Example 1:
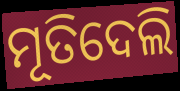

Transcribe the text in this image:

ମୂତିଦେଲି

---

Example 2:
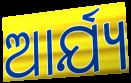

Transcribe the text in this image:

ଆର୍ଯ୍ୟ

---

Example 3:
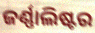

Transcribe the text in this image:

ଜର୍ଣ୍ଣାଲିଷ୍ଟର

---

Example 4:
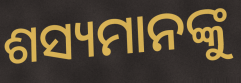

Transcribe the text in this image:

ଶସ୍ୟମାନଙ୍କୁ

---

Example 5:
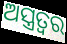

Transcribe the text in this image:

ଅସ୍ତ୍ରତ୍ୱର